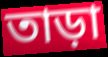
তাড়া